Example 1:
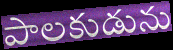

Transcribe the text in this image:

పాలకుడును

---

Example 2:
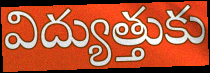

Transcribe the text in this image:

విద్యుత్తుకు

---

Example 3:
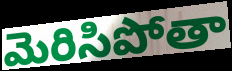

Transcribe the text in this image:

మెరిసిపోతా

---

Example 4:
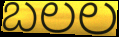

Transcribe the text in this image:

బలల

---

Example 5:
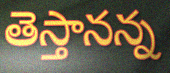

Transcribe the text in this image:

తెస్తానన్న